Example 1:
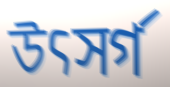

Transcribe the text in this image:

উৎসর্গ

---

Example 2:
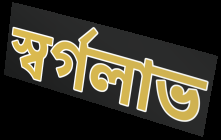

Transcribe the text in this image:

স্বর্গলাভ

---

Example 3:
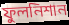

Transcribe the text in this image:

ফুলনিশান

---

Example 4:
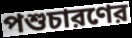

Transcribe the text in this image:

পশুচারণের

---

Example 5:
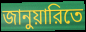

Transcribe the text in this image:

জানুয়ারিতে